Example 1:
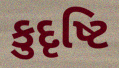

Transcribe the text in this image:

કુદૃષ્ટિ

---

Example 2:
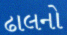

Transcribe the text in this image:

ઢાલનો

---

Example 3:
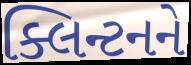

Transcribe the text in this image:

ક્લિન્ટનને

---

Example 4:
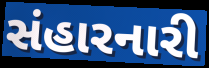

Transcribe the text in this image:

સંહારનારી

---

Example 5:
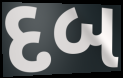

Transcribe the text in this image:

દબ